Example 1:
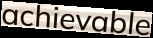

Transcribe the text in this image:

achievable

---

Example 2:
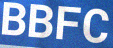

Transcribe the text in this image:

BBFC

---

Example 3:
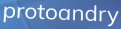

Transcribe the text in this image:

protoandry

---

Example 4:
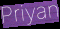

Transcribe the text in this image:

Priyan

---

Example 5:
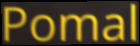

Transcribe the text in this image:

Pomal